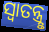
ସ୍ବାତନ୍ତ୍ରୢ